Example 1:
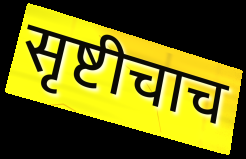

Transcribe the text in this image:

सृष्टीचाच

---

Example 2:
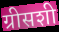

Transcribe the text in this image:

ग्रीसशी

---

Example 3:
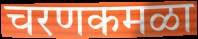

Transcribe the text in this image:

चरणकमळा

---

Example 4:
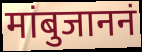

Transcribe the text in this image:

मांबुजाननं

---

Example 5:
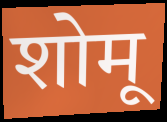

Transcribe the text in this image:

शोमू